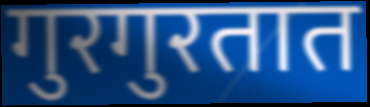
गुरगुरतात